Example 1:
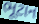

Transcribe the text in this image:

ભૂટાન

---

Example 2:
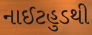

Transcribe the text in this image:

નાઈટહુડથી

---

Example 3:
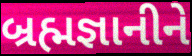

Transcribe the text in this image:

બ્રહ્મજ્ઞાનીને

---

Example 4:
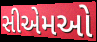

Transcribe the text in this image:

સીએમઓ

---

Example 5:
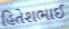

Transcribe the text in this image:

હિતેશભાઈ